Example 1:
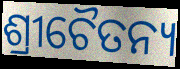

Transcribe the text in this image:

ଶ୍ରୀଚୈତନ୍ୟ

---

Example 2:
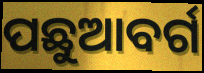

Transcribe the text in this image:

ପଛୁଆବର୍ଗ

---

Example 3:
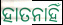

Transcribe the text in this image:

ହାତନାହିଁ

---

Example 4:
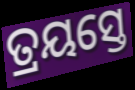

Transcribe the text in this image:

ତ୍ରୟସ୍ତେ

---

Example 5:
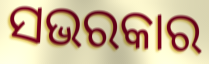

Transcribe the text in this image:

ସଭରକାର